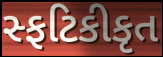
સ્ફટિકીકૃત